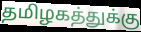
தமிழகத்துக்கு